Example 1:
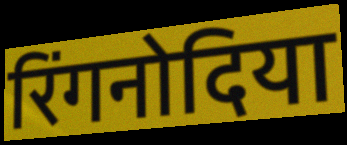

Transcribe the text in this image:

रिंगनोदिया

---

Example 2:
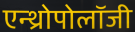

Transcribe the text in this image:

एन्थ्रोपोलॉजी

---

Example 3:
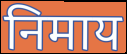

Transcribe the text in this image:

निमाय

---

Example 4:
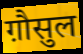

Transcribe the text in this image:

ग़ौसुल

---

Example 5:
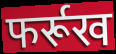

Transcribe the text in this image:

फर्रूख